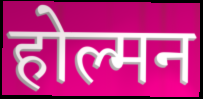
होल्मन